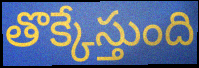
తొక్కేస్తుంది